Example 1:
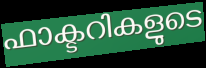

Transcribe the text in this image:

ഫാക്ടറികളുടെ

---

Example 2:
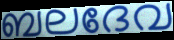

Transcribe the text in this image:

ബലദേവ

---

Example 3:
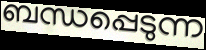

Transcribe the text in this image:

ബന്ധപ്പെടുന്ന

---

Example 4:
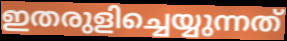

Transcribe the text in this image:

ഇതരുളിച്ചെയ്യുന്നത്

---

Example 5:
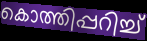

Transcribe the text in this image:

കൊത്തിപ്പറിച്ച്